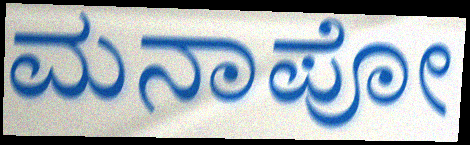
ಮನಾಪೋ